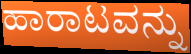
ಹಾರಾಟವನ್ನು